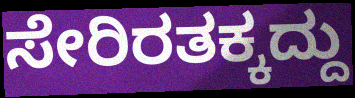
ಸೇರಿರತಕ್ಕದ್ದು